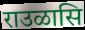
राउळासि